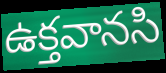
ఉక్తవానసి